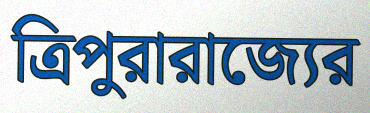
ত্রিপুরারাজ্যের